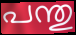
പന്തു